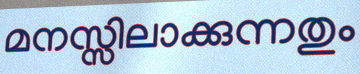
മനസ്സിലാക്കുന്നതും